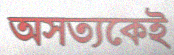
অসত্যকেই